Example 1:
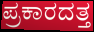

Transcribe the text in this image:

ಪ್ರಕಾರದತ್ತ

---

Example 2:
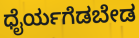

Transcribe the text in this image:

ಧೈರ್ಯಗೆಡಬೇಡ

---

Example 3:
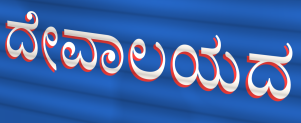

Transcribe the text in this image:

ದೇವಾಲಯದ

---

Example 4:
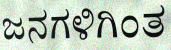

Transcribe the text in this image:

ಜನಗಳಿಗಿಂತ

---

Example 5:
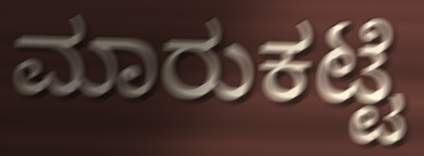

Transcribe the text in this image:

ಮಾರುಕಟ್ಟೆ